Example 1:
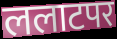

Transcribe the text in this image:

ललाटपर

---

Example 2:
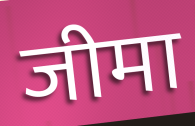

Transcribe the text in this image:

जीमा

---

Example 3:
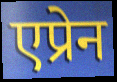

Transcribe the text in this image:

एप्रेन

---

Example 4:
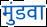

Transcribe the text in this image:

मुंडवा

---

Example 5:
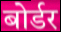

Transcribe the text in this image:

बोर्डर